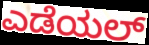
ಎಡೆಯಲ್